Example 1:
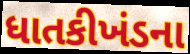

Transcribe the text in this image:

ધાતકીખંડના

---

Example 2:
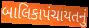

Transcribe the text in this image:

બાલિકાપંચાયતનું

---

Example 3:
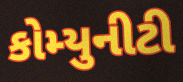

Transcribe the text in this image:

કોમ્યુનીટી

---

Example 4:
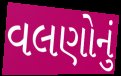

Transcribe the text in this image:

વલણોનું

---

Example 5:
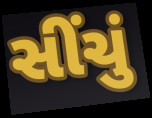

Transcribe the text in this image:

સીંચું